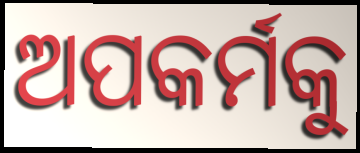
ଅପକର୍ମକୁ